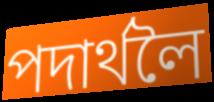
পদাৰ্থলৈ